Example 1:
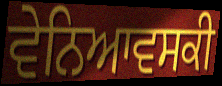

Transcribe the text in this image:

ਵੇਨਿਆਵਸਕੀ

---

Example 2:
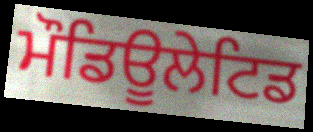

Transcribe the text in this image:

ਮੌਡਿਊਲੇਟਿਡ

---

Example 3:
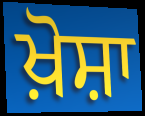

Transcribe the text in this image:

ਖ਼ੋਸ਼ਾ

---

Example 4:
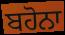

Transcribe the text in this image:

ਬਹੋਨਾ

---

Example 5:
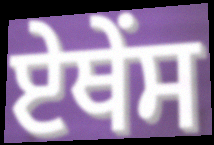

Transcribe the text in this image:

ਏਥੇਂਸ